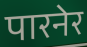
पारनेर